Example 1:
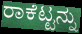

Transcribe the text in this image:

ರಾಕೆಟ್ಟನ್ನು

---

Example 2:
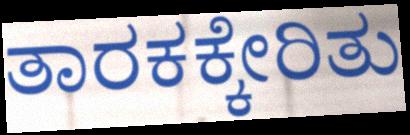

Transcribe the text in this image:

ತಾರಕಕ್ಕೇರಿತು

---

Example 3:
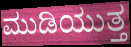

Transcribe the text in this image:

ಮುಡಿಯುತ್ತ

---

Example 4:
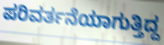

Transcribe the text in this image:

ಪರಿವರ್ತನೆಯಾಗುತ್ತಿದ್ದ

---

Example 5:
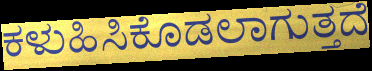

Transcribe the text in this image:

ಕಳುಹಿಸಿಕೊಡಲಾಗುತ್ತದೆ